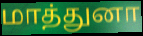
மாத்துனா